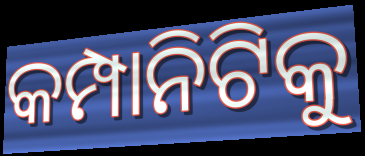
କମ୍ପାନିଟିକୁ